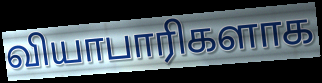
வியாபாரிகளாக